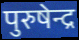
पुरुषेन्द्र